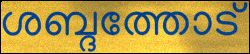
ശബ്ദത്തോട്